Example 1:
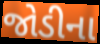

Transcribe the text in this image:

જોડીના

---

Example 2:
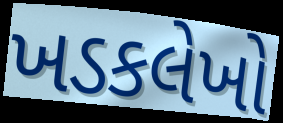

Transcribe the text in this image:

ખડકલેખો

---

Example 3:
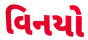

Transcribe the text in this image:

વિનયો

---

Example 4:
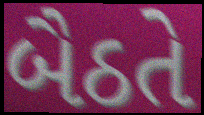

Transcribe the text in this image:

બૈઠતે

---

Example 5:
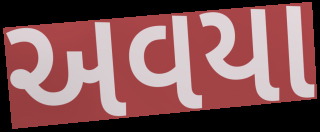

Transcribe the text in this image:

અવયા